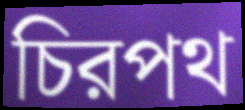
চিরপথ